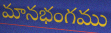
మానభంగము